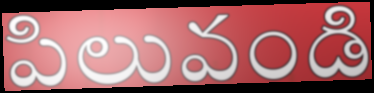
పిలువండి